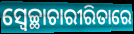
ସ୍ଵେଚ୍ଛାଚାରୀରିତାରେ